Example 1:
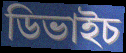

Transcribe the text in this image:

ডিভাইচ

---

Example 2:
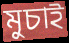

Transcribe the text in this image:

মুচাই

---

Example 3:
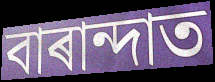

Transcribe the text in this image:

বাৰান্দাত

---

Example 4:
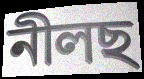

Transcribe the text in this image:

নীলছ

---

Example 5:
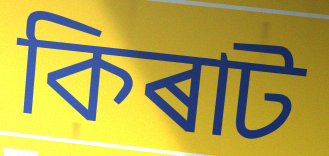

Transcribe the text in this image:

কিৰাট